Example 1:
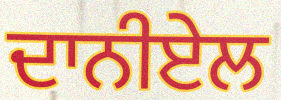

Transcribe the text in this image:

ਦਾਨੀਏਲ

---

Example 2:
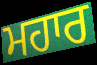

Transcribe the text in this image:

ਮਹਾਰ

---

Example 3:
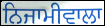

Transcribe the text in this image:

ਨਿਜਾਮੀਵਾਲਾ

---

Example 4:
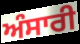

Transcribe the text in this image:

ਅੰਸਾਰੀ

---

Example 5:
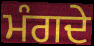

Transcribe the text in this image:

ਮੰਗਦੇ